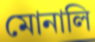
মোনালি